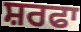
ਸ਼ਰਫਾ